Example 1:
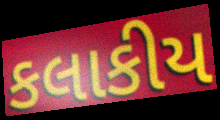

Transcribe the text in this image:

કલાકીય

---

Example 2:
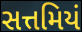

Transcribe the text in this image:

સત્તમિયં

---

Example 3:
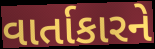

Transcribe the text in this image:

વાર્તાકારને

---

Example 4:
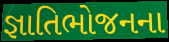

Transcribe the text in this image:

જ્ઞાતિભોજનના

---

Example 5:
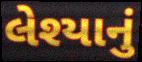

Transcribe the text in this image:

લેશ્યાનું